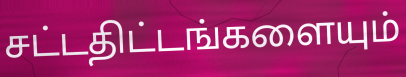
சட்டதிட்டங்களையும்